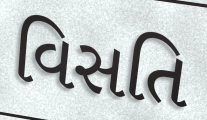
વિસતિ